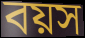
বয়স